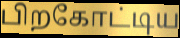
பிறகோட்டிய